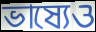
ভাষ্যেও